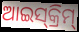
ଆଇସ୍‍କ୍ରିମ୍